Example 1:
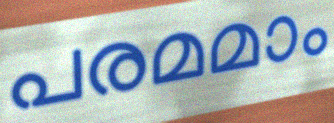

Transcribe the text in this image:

പരമമാം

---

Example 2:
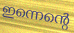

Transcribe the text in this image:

ഇന്നെന്റെ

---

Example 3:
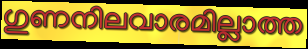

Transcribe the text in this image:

ഗുണനിലവാരമില്ലാത്ത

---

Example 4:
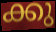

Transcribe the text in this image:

ക്കു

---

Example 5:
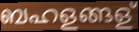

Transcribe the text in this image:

ബഹളങ്ങള്